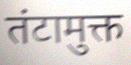
तंटामुक्त